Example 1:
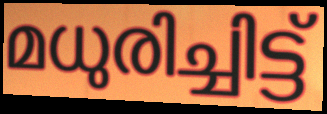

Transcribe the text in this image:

മധുരിച്ചിട്ട്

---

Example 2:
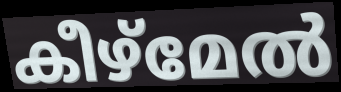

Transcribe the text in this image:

കീഴ്മേൽ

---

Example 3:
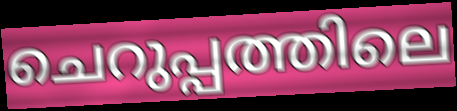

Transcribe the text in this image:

ചെറുപ്പത്തിലെ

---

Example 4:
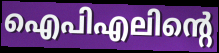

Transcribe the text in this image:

ഐപിഎലിന്റെ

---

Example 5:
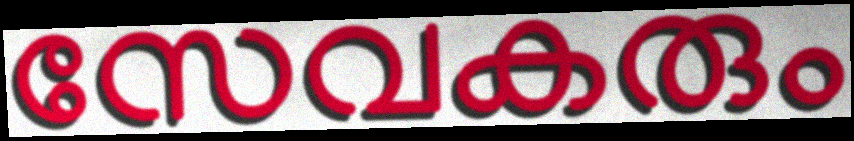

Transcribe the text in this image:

സേവകരും